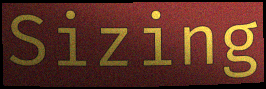
Sizing